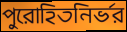
পুরোহিতনির্ভর